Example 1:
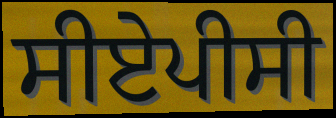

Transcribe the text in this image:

ਸੀਏਪੀਸੀ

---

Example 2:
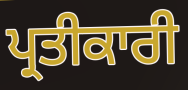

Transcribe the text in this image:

ਪ੍ਰਤੀਕਾਰੀ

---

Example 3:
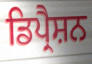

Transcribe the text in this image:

ਡਿਪ੍ਰੈਸ਼ਨ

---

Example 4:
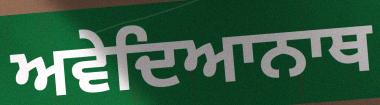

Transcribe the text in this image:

ਅਵੇਦਿਆਨਾਥ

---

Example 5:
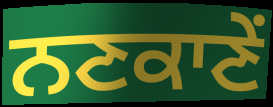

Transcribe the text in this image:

ਨਣਕਾਣੇਂ